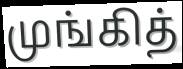
முங்கித்